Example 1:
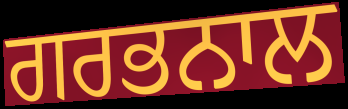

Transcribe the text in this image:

ਗਰਭਨਾਲ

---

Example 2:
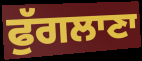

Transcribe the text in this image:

ਫੁੱਗਲਾਣਾ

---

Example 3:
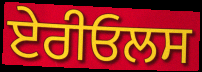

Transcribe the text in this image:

ਏਰੀਓਲਸ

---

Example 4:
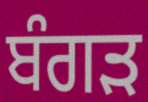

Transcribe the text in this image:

ਬੰਗੜ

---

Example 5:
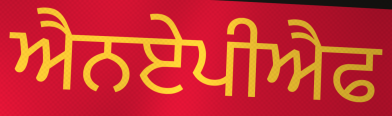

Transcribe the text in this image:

ਐਨਏਪੀਐਫ